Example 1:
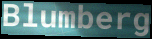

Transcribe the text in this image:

Blumberg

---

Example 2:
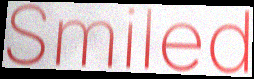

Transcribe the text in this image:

Smiled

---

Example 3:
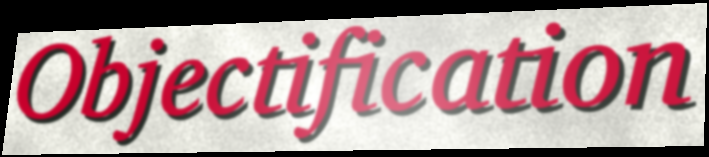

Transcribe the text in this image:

Objectification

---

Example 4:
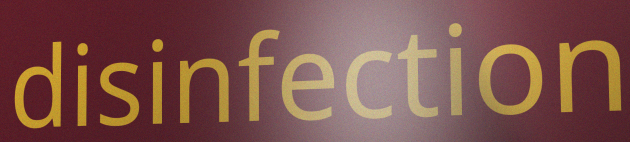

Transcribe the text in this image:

disinfection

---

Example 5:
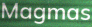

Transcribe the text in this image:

Magmas